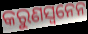
କରୁଣସ୍ଵନେନ